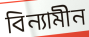
বিন্যামীন